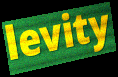
levity